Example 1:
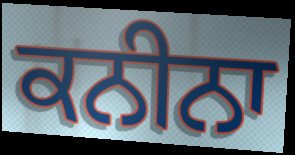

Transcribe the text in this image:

ਕਨੀਨਾ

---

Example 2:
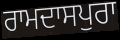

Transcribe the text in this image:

ਰਾਮਦਾਸਪੁਰਾ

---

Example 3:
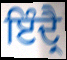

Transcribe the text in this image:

ਇੰਦ੍ਰੈ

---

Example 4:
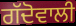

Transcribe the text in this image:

ਗੱਦੋਵਾਲੀ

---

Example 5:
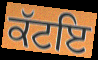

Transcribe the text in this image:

ਕੱਟਇ